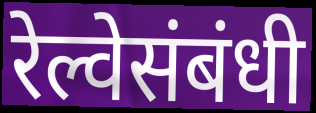
रेल्वेसंबंधी